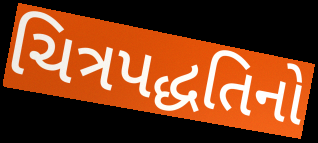
ચિત્રપદ્ધતિનો